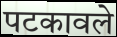
पटकावले